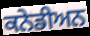
ਕਨੇਡੀਅਨ